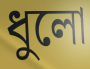
ধুলো